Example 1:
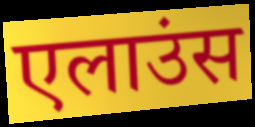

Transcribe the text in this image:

एलाउंस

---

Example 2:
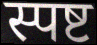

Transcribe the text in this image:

स्पष्ट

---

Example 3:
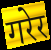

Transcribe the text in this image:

गरेर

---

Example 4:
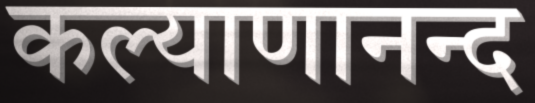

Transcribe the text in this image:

कल्याणानन्द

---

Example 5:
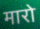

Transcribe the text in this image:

मारो